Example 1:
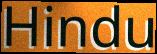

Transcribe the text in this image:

Hindu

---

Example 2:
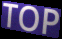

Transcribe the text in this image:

TOP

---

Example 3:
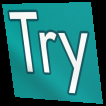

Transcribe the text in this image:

Try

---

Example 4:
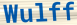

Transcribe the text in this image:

Wulff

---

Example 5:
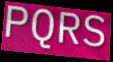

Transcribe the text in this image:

PQRS